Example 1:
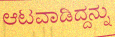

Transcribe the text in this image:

ಆಟವಾಡಿದ್ದನ್ನು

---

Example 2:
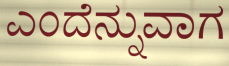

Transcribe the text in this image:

ಎಂದೆನ್ನುವಾಗ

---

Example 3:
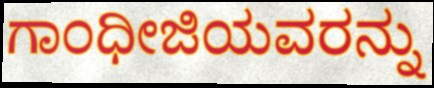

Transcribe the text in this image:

ಗಾಂಧೀಜಿಯವರನ್ನು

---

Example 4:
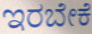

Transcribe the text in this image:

ಇರಬೇಕೆ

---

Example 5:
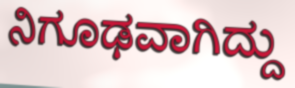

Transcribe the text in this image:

ನಿಗೂಢವಾಗಿದ್ದು